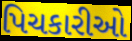
પિચકારીઓ